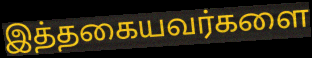
இத்தகையவர்களை